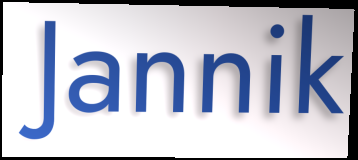
Jannik